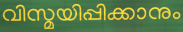
വിസ്മയിപ്പിക്കാനും